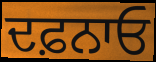
ਦਫ਼ਨਾਓ